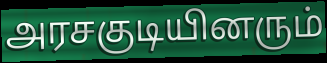
அரசகுடியினரும்